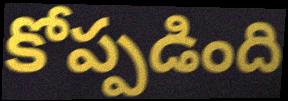
కోప్పడింది